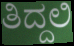
ತಿದ್ದಲಿ